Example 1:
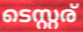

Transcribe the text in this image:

ടെസ്റ്റര്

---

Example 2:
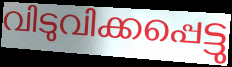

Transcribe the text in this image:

വിടുവിക്കപ്പെട്ടു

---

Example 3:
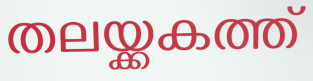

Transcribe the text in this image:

തലയ്ക്കകത്ത്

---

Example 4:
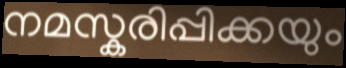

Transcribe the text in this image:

നമസ്കരിപ്പിക്കയും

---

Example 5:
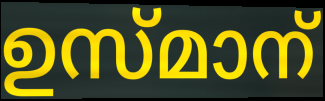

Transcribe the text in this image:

ഉസ്മാന്